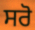
ਸਰੋ